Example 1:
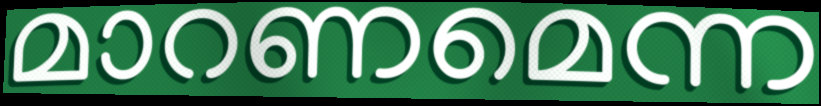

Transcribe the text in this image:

മാറണമെന്ന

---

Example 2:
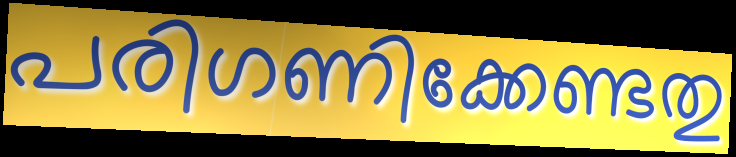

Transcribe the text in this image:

പരിഗണിക്കേണ്ടതു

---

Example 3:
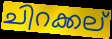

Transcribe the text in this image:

ചിറക്കല്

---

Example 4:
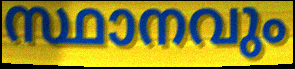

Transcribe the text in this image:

സ്ഥാനവും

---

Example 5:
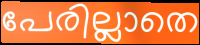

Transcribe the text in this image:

പേരില്ലാതെ